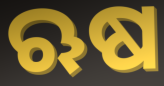
ଋଷ